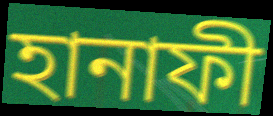
হানাফী